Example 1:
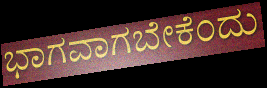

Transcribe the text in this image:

ಭಾಗವಾಗಬೇಕೆಂದು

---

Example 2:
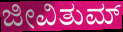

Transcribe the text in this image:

ಜೀವಿತುಮ್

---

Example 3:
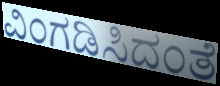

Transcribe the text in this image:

ವಿಂಗಡಿಸಿದಂತೆ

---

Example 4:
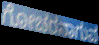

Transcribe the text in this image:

ಗೋಚರನಾಗುವ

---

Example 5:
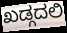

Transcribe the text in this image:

ಖಡ್ಗದಲಿ